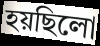
হয়ছিলো